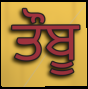
ਤੌਬੂ